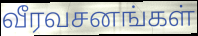
வீரவசனங்கள்